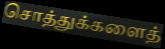
சொத்துக்களைத்